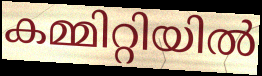
കമ്മിറ്റിയിൽ